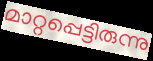
മാറ്റപ്പെട്ടിരുന്നു